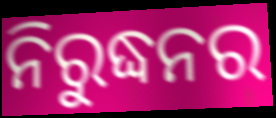
ନିରୁଦ୍ଧନର